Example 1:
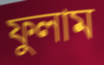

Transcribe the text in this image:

ফুলাম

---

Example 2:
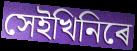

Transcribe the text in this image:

সেইখিনিৰে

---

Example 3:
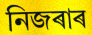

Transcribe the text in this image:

নিজৰাৰ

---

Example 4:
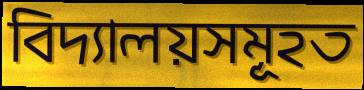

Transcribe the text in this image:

বিদ্যালয়সমূহত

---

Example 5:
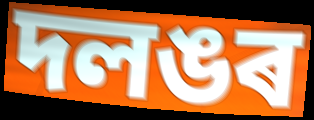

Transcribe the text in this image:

দলঙৰ